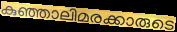
കുഞ്ഞാലിമരക്കാരുടെ